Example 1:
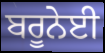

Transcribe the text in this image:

ਬਰੂਨੇਈ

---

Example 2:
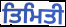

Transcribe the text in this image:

ਤਿਮਿਤੀ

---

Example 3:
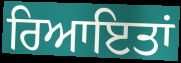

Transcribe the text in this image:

ਰਿਆਇਤਾਂ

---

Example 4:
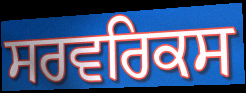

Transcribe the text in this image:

ਸਰਵਰਿਕਸ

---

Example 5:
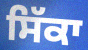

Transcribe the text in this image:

ਸਿੱਕਾ